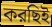
করছিই